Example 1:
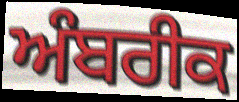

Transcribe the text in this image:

ਅੰਬਰੀਕ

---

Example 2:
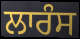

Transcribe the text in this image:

ਲਾਰੰਸ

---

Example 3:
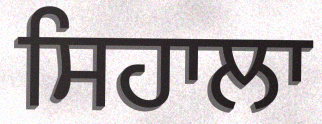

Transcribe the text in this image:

ਸਿਹਾਲਾ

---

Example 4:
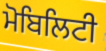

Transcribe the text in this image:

ਮੋਬਿਲਿਟੀ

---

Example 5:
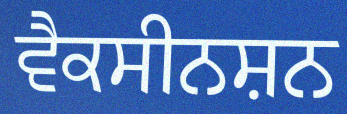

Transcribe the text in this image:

ਵੈਕਸੀਨਸ਼ਨ